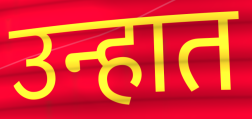
उन्हात